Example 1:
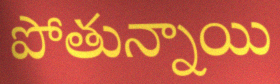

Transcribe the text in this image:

పోతున్నాయి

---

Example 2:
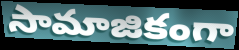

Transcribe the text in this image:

సామాజికంగా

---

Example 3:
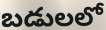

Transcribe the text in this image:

బడులలో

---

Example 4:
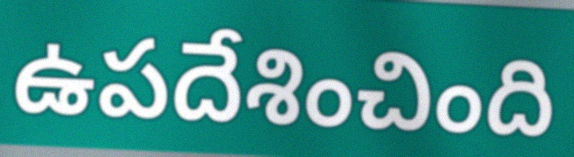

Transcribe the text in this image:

ఉపదేశించింది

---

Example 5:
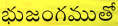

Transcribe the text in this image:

భుజంగముతో